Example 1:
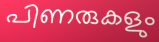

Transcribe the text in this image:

പിണരുകളും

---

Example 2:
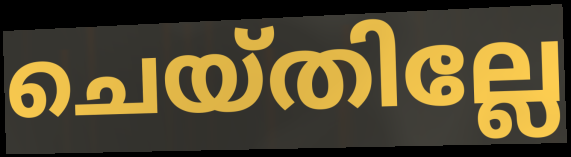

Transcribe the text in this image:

ചെയ്തില്ലേ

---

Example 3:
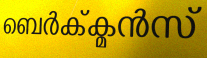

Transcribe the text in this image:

ബെർക്ക്മൻസ്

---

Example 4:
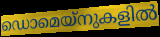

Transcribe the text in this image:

ഡൊമെയ്നുകളിൽ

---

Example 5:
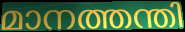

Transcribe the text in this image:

മാനത്തന്തി